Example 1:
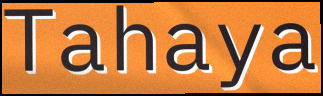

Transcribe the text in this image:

Tahaya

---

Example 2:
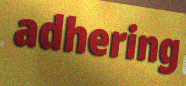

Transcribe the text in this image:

adhering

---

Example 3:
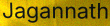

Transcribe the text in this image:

Jagannath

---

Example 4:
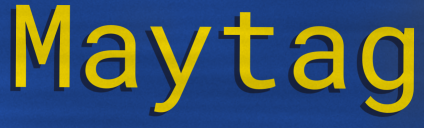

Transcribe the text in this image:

Maytag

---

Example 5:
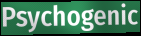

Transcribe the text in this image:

Psychogenic